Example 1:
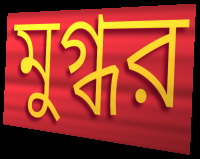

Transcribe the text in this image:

মুগ্ধর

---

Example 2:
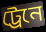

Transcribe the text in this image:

ট্রেনে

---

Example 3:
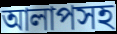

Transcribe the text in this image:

আলাপসহ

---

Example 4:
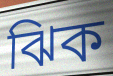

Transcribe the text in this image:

ঝিক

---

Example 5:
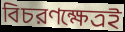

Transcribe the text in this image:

বিচরণক্ষেত্রই